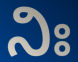
ನಿಃ